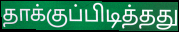
தாக்குப்பிடித்தது